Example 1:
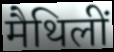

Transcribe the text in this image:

मैथिलीं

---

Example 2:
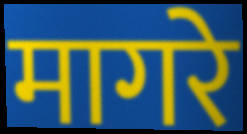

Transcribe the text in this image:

मागरे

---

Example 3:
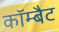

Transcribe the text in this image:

कॉम्बैट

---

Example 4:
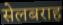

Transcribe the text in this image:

सेलबराह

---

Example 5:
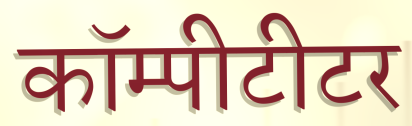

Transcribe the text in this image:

कॉम्पीटीटर